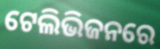
ଟେଲିଭିଜନରେ